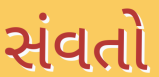
સંવતો